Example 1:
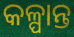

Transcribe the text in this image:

କଳ୍ପାନ୍ତ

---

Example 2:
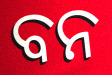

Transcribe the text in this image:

ବନ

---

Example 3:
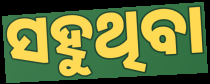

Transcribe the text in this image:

ସହୁଥିବା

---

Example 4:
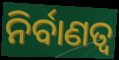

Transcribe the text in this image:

ନିର୍ବାଣତ୍ୱ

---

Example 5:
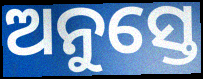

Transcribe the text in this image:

ଅନୁସ୍ତେ